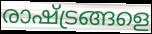
രാഷ്ട്രങ്ങളെ